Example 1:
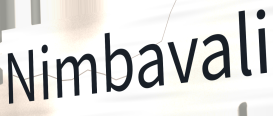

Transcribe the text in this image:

Nimbavali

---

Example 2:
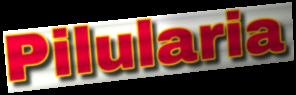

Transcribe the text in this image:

Pilularia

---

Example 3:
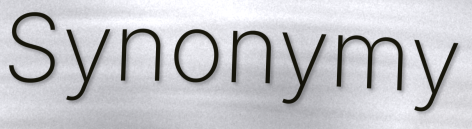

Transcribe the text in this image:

Synonymy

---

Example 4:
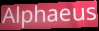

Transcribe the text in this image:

Alphaeus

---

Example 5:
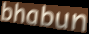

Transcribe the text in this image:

bhabun